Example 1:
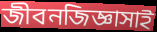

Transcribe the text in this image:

জীবনজিজ্ঞাসাই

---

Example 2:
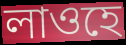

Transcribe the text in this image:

লাওহে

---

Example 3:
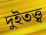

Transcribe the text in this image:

দুইতত্ত্ব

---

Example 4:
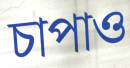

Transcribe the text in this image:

চাপাও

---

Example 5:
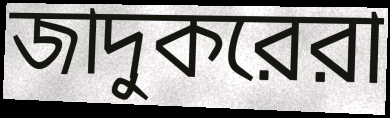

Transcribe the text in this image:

জাদুকরেরা